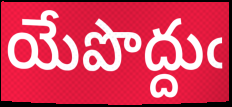
యేపొద్దుఁ